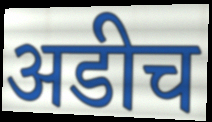
अडीच